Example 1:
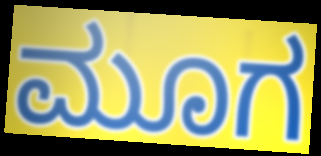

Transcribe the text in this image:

ಮೂಗ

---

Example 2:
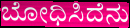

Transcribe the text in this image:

ಬೋಧಿಸಿದೆನು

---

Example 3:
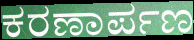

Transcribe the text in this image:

ಕರಣಾರ್ಪಣ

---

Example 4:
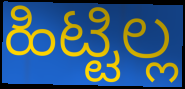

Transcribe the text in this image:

ಹಿಟ್ಟಿಲ್ಲ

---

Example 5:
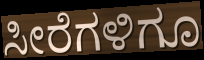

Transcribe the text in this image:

ಸೀರೆಗಳಿಗೂ